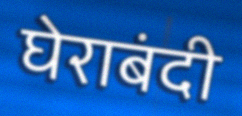
घेराबंदी